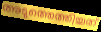
അടുത്തെത്തിച്ചത്